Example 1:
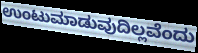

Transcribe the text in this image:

ಉಂಟುಮಾಡುವುದಿಲ್ಲವೆಂದು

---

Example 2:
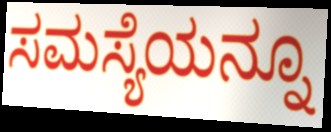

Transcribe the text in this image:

ಸಮಸ್ಯೆಯನ್ನೂ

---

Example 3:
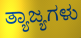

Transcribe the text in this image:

ತ್ಯಾಜ್ಯಗಳು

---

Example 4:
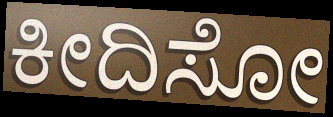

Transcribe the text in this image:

ಕೀದಿಸೋ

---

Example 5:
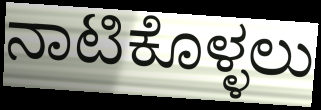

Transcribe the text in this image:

ನಾಟಿಕೊಳ್ಳಲು